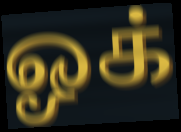
ஓக்